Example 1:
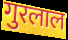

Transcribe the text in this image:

गुरलाल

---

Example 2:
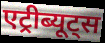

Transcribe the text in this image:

एट्रीब्यूट्स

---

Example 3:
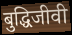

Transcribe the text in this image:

बुद्धिजीवी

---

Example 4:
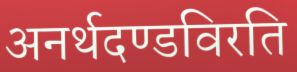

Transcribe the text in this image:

अनर्थदण्डविरति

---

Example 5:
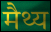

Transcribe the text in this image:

मैथ्य